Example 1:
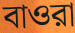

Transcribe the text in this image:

বাওরা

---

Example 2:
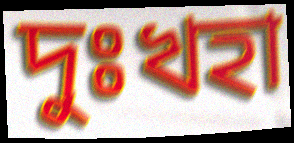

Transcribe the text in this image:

দুঃখহা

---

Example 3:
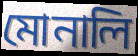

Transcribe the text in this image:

মোনালি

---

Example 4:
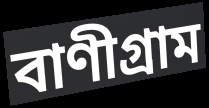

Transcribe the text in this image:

বাণীগ্রাম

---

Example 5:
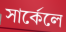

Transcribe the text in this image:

সার্কেলে